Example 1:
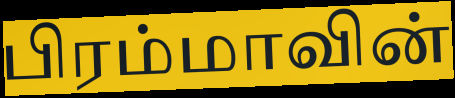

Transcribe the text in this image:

பிரம்மாவின்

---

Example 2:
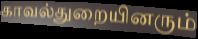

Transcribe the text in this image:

காவல்துறையினரும்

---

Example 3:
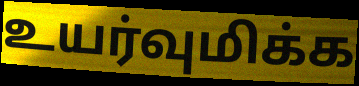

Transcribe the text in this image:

உயர்வுமிக்க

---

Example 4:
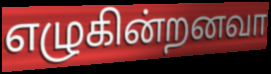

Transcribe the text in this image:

எழுகின்றனவா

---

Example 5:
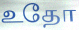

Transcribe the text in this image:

உதோ